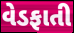
વેડફાતી